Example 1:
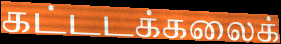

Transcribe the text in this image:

கட்டடக்கலைக்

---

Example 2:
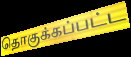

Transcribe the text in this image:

தொகுக்கப்பட்ட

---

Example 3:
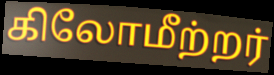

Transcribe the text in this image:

கிலோமீற்றர்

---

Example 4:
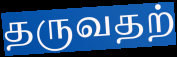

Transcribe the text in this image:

தருவதற்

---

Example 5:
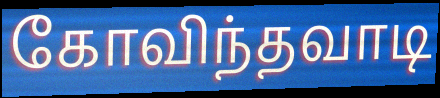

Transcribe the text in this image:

கோவிந்தவாடி